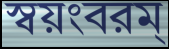
স্বয়ংবরম্